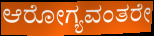
ಆರೋಗ್ಯವಂತರೇ